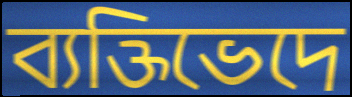
ব্যক্তিভেদে